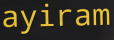
ayiram